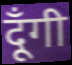
दूँगी